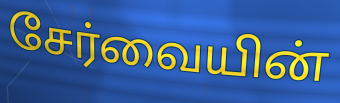
சேர்வையின்